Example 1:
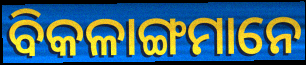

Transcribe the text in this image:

ବିକଳାଙ୍ଗମାନେ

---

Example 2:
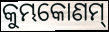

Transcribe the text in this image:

କୁମ୍ଭକୋଣମ୍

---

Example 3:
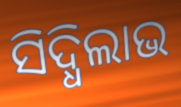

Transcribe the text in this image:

ସିଦ୍ଧିଲାଭ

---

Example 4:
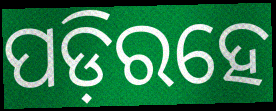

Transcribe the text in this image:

ପଡ଼ିରହେ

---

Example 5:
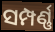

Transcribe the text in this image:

ସମ୍ପର୍ଣ୍ଣ